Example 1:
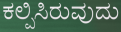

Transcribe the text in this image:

ಕಲ್ಪಿಸಿರುವುದು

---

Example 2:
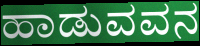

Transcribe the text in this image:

ಹಾಡುವವನ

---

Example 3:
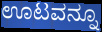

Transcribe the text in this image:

ಊಟವನ್ನೂ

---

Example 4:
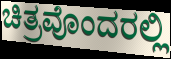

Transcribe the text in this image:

ಚಿತ್ರವೊಂದರಲ್ಲಿ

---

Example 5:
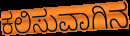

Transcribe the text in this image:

ಕಲಿಸುವಾಗಿನ